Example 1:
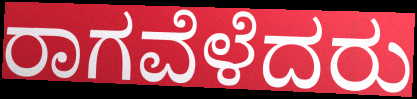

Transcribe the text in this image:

ರಾಗವೆಳೆದರು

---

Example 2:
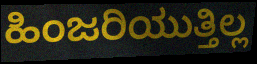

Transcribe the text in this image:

ಹಿಂಜರಿಯುತ್ತಿಲ್ಲ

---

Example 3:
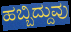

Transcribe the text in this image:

ಹಬ್ಬಿದ್ದುವು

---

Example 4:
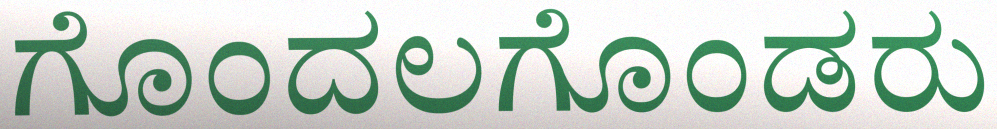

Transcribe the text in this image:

ಗೊಂದಲಗೊಂಡರು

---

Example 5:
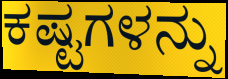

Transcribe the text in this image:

ಕಷ್ಟಗಳನ್ನು